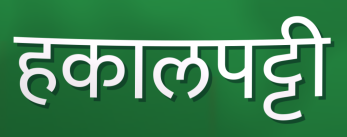
हकालपट्टी